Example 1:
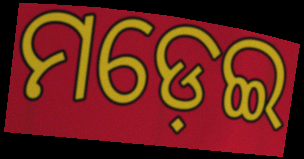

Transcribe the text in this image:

ମଡ଼େଇ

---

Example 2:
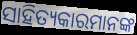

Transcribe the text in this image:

ସାହିତ୍ୟକାରମାନଙ୍କ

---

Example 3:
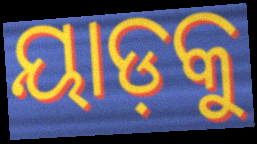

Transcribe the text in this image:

ୟାଡ଼କୁ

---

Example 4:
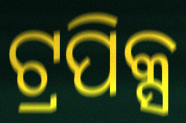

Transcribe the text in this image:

ଟ୍ରପିକ୍ସ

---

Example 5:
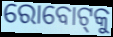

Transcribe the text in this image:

ରୋବୋଟ୍‌କୁ